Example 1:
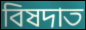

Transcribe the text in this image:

বিষদাত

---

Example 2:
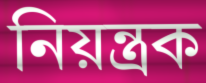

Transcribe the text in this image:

নিয়ন্ত্রক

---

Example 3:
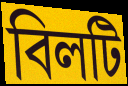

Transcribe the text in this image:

বিলটি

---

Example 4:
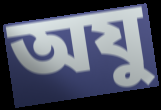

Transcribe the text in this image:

অযু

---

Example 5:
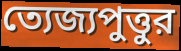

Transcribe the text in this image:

ত্যেজ্যপুত্তুর